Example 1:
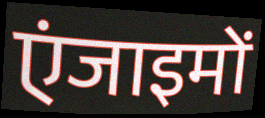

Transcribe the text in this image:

एंजाइमों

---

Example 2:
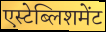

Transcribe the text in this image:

एस्टेब्लिशमेंट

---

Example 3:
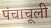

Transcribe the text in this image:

पंचाचूली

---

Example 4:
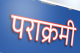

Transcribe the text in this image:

पराक्रमी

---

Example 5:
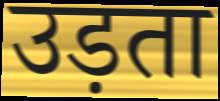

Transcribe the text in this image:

उड़ता